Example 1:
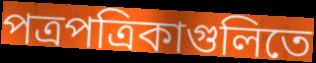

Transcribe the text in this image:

পত্রপত্রিকাগুলিতে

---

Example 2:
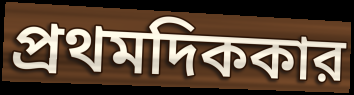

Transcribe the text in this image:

প্রথমদিককার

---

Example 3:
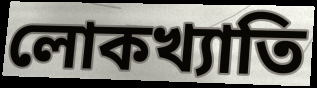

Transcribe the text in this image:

লোকখ্যাতি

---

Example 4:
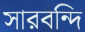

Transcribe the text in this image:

সারবন্দি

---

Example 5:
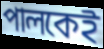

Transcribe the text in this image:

পালকেই